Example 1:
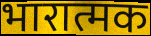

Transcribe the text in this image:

भारात्मक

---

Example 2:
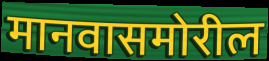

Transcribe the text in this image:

मानवासमोरील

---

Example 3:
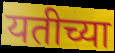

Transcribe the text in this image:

यतीच्या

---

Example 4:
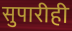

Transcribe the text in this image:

सुपारीही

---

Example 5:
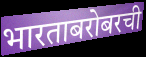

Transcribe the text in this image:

भारताबरोबरची